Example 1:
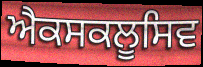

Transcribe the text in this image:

ਐਕਸਕਲੂਸਿਵ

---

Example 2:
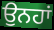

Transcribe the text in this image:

ਉਨਹਾਂ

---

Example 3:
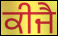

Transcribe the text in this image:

ਕੀਜੈ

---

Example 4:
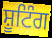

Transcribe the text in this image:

ਸ਼ੂਟਿੰਗ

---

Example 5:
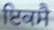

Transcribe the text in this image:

ਇਕਸੈ